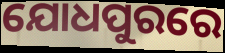
ଯୋଧପୁରରେ